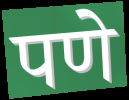
पणे